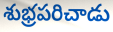
శుభ్రపరిచాడు